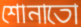
শোনাতো